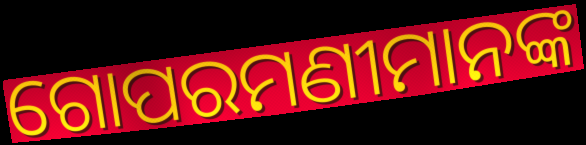
ଗୋପରମଣୀମାନଙ୍କ